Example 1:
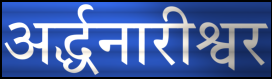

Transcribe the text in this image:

अर्द्धनारीश्वर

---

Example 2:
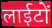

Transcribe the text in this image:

लाईटों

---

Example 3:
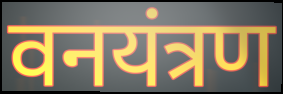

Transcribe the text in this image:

वनयंत्रण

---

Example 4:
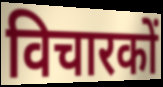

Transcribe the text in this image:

विचारकों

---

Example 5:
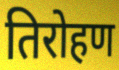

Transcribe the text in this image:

तिरोहण